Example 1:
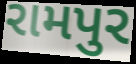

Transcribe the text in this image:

રામપુર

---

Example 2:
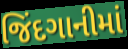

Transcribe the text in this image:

જિંદગાનીમાં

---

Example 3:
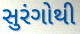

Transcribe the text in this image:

સુરંગોથી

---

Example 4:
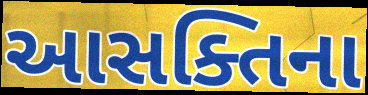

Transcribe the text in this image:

આસક્તિના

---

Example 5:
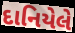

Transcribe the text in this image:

દાનિયેલે